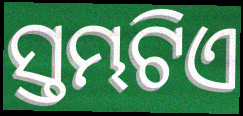
ସ୍ତମ୍ଭଟିଏ